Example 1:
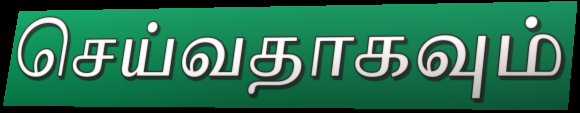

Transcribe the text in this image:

செய்வதாகவும்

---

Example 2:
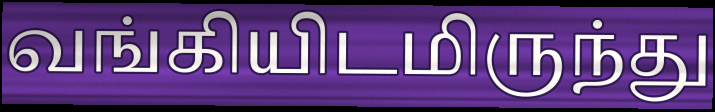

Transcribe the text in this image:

வங்கியிடமிருந்து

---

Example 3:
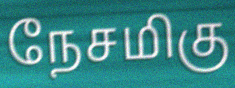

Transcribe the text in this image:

நேசமிகு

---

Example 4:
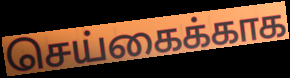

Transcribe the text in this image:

செய்கைக்காக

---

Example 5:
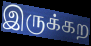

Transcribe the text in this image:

இருக்கற